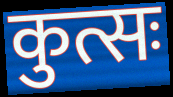
कुत्सः